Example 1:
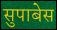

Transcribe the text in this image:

सुपाबेस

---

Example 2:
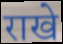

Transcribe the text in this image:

राखे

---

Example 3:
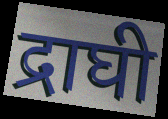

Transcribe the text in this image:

द्राघी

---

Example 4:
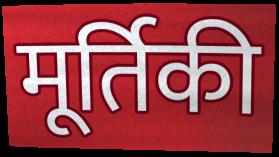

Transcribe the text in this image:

मूर्तिकी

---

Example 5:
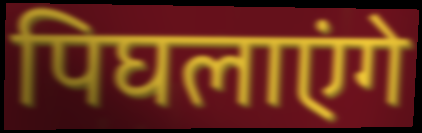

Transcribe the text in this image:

पिघलाएंगे